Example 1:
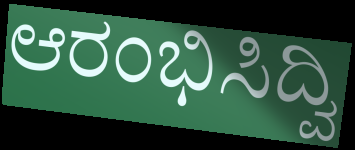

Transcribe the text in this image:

ಆರಂಭಿಸಿದ್ವಿ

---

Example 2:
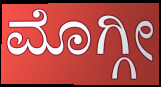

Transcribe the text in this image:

ಮೊಗ್ಗೀ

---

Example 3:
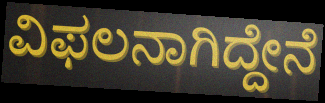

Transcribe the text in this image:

ವಿಫಲನಾಗಿದ್ದೇನೆ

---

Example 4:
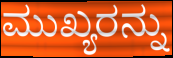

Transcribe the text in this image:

ಮುಖ್ಯರನ್ನು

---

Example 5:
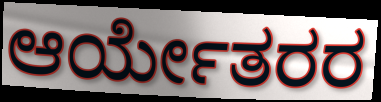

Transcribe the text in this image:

ಆರ್ಯೇತರರ